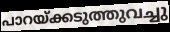
പാറയ്ക്കടുത്തുവച്ചു